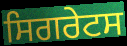
ਸਿਗਰੇਟਸ